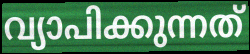
വ്യാപിക്കുന്നത്